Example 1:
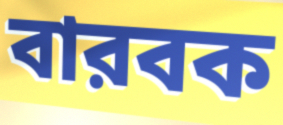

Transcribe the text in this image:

বারবক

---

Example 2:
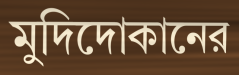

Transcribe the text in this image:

মুদিদোকানের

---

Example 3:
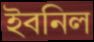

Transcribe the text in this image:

ইবনিল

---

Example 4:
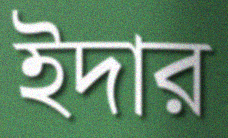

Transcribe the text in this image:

ইদার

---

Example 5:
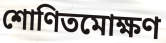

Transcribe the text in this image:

শোণিতমোক্ষণ